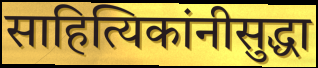
साहित्यिकांनीसुद्धा